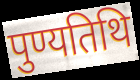
पुण्यतिथि